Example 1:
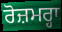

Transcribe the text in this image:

ਰੋਜ਼ਮਰ੍ਹਾ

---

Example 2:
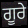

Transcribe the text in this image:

ਗੂਰੇ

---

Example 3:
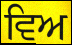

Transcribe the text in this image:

ਵਿਅ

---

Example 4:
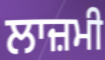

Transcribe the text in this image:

ਲਾਜ਼ਮੀ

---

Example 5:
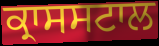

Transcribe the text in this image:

ਕ੍ਰਾਸਸਟਾਲ